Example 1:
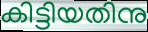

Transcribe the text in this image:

കിട്ടിയതിനു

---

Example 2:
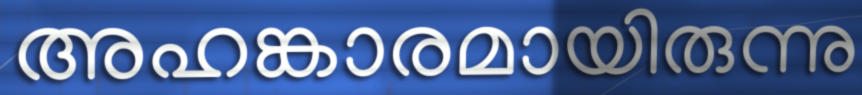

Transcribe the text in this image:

അഹങ്കാരമായിരുന്നു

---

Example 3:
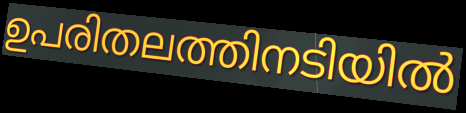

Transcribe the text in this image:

ഉപരിതലത്തിനടിയിൽ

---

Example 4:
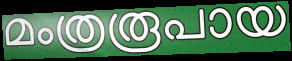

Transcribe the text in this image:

മംത്രരൂപായ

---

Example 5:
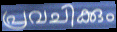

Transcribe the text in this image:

പ്രവചിക്കും